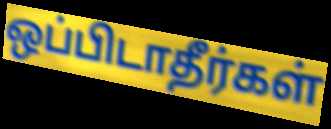
ஒப்பிடாதீர்கள்